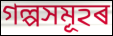
গল্পসমূহৰ